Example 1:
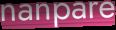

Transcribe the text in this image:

nanpare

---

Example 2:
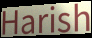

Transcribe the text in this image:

Harish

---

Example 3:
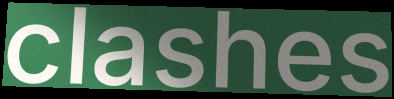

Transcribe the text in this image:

clashes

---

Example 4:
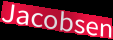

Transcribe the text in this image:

Jacobsen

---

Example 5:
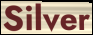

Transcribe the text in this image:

Silver